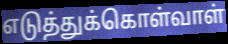
எடுத்துக்கொள்வாள்